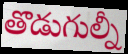
తొడుగుల్నీ